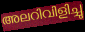
അലറിവിളിച്ചു